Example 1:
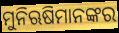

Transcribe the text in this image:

ମୁନିଋଷିମାନଙ୍କର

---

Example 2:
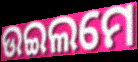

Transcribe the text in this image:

ଉଇଲମେ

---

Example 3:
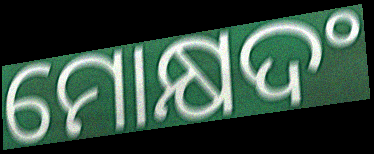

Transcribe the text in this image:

ମୋକ୍ଷଦଂ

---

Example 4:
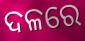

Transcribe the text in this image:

ଦଳରେ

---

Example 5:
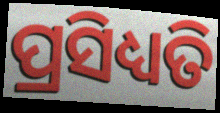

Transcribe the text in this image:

ପ୍ରସିଧ୍ୟତି